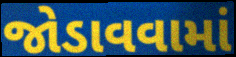
જોડાવવામાં